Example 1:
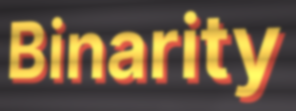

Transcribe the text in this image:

Binarity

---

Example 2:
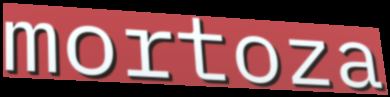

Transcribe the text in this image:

mortoza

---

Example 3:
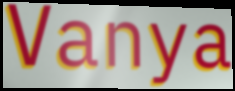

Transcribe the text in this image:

Vanya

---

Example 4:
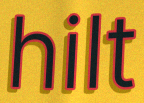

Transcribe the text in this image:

hilt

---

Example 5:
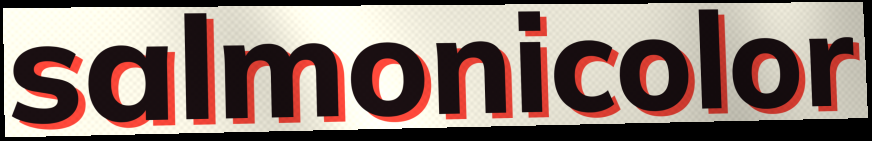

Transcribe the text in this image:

salmonicolor